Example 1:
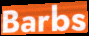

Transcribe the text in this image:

Barbs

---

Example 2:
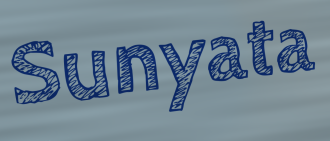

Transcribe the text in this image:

Sunyata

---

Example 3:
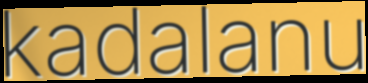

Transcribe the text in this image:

kadalanu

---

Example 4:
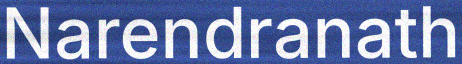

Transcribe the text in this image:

Narendranath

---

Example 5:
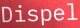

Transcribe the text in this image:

Dispel